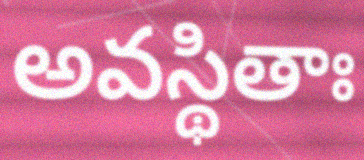
అవస్థితాః